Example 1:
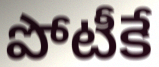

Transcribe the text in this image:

పోటీకే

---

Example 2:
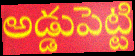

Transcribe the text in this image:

అడ్డుపెట్టి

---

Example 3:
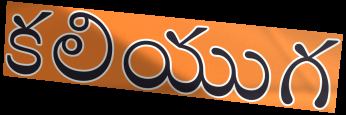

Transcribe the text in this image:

కలియుగ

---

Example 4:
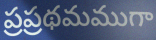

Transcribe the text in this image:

ప్రప్రథమముగా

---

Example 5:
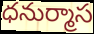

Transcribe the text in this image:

ధనుర్మాస